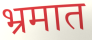
भ्रमात